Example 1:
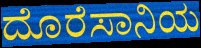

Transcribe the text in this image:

ದೊರೆಸಾನಿಯ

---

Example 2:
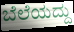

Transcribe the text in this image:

ಬೆಲೆಯದ್ದು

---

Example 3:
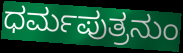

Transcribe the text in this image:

ಧರ್ಮಪುತ್ರನುಂ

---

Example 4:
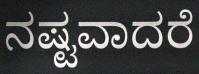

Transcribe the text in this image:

ನಷ್ಟವಾದರೆ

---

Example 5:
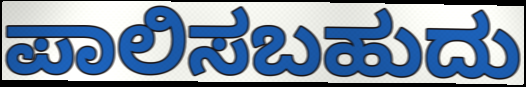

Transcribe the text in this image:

ಪಾಲಿಸಬಹುದು